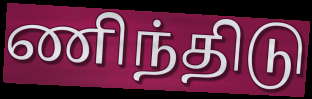
ணிந்திடு